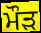
ਮੌਡ਼